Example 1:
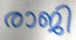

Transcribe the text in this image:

രാജി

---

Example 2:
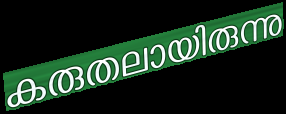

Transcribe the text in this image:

കരുതലായിരുന്നു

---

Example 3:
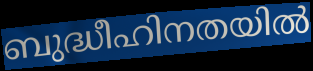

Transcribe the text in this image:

ബുദ്ധീഹിനതയിൽ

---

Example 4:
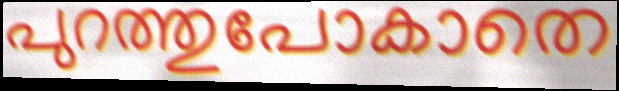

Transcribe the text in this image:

പുറത്തുപോകാതെ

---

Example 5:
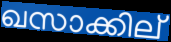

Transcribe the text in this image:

ഖസാക്കില്